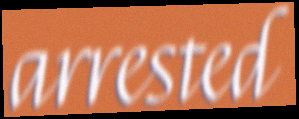
arrested